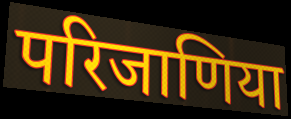
परिजाणिया